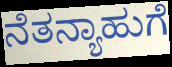
ನೆತನ್ಯಾಹುಗೆ